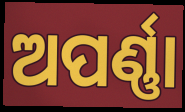
ଅପର୍ଣ୍ଣା